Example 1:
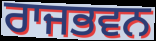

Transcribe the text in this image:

ਰਾਜਭਵਨ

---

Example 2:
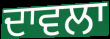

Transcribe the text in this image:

ਦਾਵਲਾ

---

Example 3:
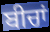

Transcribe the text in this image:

ਬੀਚਾਂ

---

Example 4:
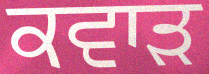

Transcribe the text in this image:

ਕਵਾੜ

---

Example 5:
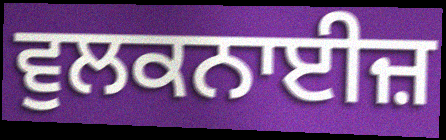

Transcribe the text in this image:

ਵੁਲਕਨਾਈਜ਼